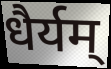
धैर्यम्